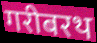
गरीबरथ